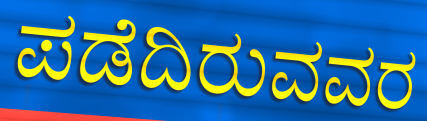
ಪಡೆದಿರುವವರ